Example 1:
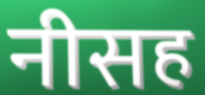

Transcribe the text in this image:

नीसह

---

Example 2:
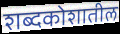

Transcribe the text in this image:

शब्दकोशातील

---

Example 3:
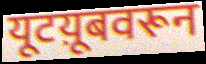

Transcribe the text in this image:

यूटय़ूबवरून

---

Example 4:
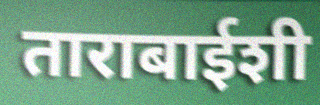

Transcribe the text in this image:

ताराबाईशी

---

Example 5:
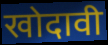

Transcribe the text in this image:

खोदावी